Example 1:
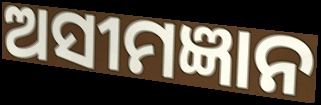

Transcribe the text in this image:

ଅସୀମଜ୍ଞାନ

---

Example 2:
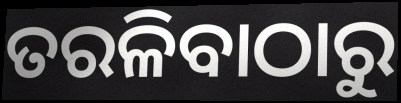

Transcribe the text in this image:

ତରଳିବାଠାରୁ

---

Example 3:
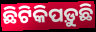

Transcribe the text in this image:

ଛିଟିକିପଡ଼ୁଛି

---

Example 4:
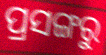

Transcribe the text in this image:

ପ୍ରସଙ୍ଗରୁ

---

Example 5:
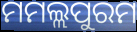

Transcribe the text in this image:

ମମଲ୍ଲପୁରମ